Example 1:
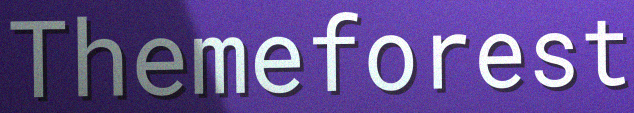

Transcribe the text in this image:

Themeforest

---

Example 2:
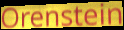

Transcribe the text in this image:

Orenstein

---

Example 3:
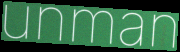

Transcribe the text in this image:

unman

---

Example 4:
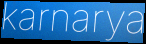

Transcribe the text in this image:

karnarya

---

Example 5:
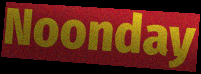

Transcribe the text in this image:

Noonday